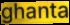
ghanta